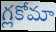
గ్లకోమా